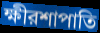
ক্ষীরশাপাতি